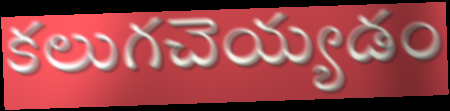
కలుగచెయ్యడం